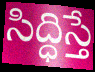
సిద్ధిస్తే